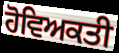
ਹੋਵਿਅਕਤੀ